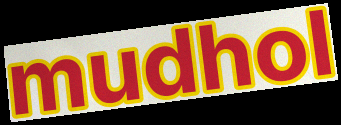
mudhol